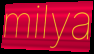
milya